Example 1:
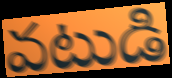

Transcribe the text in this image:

వటుడి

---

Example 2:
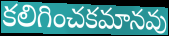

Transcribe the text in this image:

కలిగించకమానవు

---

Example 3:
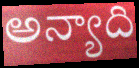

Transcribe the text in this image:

అన్యాది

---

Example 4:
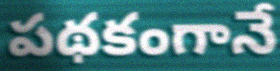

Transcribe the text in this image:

పథకంగానే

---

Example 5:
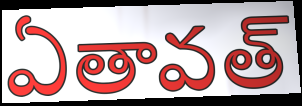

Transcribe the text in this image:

ఏతావత్